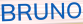
BRUNO